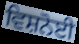
ਵਿਸ਼ਨੋਈ